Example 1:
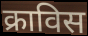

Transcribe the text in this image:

क्राविस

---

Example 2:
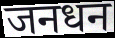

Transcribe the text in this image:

जनधन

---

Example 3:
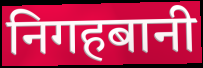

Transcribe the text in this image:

निगहबानी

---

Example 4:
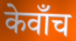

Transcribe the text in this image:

केवाँच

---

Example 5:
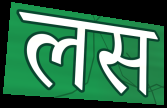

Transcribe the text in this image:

लस